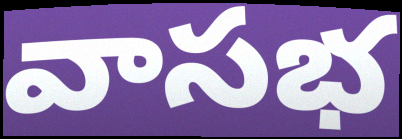
వాసభ